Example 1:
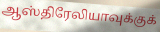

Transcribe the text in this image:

ஆஸ்திரேலியாவுக்குக்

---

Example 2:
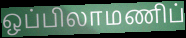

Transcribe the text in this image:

ஒப்பிலாமணிப்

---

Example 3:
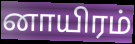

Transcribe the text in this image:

னாயிரம்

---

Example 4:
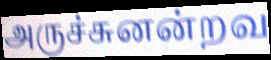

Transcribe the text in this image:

அருச்சுனன்றவ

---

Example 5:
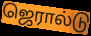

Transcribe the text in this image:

ஜெரால்டு